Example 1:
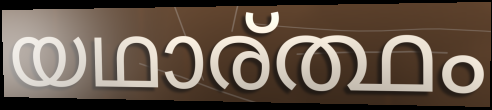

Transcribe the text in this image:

യഥാര്ത്ഥം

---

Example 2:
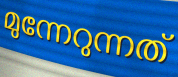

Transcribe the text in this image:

മുന്നേറുന്നത്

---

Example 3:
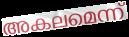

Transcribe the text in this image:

അകലമെന്ന്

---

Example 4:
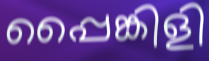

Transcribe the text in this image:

പ്പൈങ്കിളി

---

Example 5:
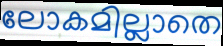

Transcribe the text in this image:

ലോകമില്ലാതെ